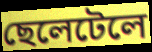
ছেলেটেলে